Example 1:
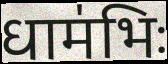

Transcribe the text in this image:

धाम॑भिः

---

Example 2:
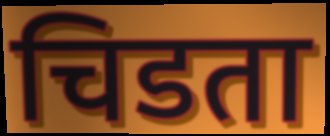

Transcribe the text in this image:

चिडता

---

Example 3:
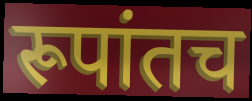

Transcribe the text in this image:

रूपांतच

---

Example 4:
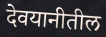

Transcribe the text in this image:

देवयानीतील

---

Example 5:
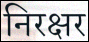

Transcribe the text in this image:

निरक्षर